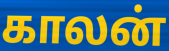
காலன்